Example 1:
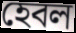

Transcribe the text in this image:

হেবল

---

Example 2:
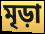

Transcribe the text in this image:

মৃড়া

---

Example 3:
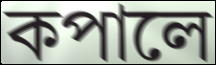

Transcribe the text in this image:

কপালে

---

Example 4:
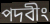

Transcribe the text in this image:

পদবীং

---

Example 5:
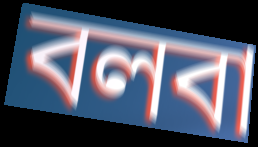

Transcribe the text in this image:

বলবা